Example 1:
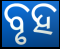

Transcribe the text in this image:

ବୃହ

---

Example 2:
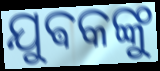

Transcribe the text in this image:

ଯୁଵକଙ୍କୁ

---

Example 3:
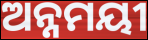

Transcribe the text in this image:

ଅନ୍ନମୟୀ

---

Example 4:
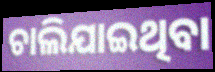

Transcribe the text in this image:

ଚାଲିଯାଇଥିବା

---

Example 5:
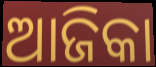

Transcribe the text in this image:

ଆଜିକା